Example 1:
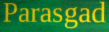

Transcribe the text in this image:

Parasgad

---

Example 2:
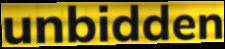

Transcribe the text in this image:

unbidden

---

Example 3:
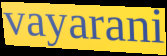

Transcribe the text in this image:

vayarani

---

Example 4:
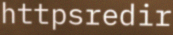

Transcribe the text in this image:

httpsredir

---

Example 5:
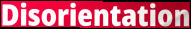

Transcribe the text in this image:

Disorientation